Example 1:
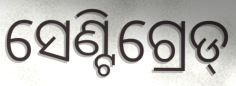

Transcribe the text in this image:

ସେଣ୍ଟିଗ୍ରେଡ୍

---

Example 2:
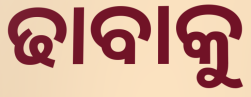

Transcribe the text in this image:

ଢାବାକୁ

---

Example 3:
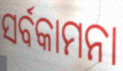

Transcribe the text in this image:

ସର୍ବକାମନା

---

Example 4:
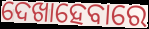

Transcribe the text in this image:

ଦେଖାହେବାରେ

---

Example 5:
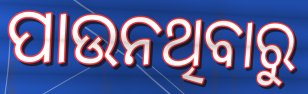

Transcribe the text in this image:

ପାଉନଥିବାରୁ